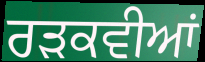
ਰੜਕਵੀਆਂ